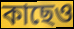
কাছেও